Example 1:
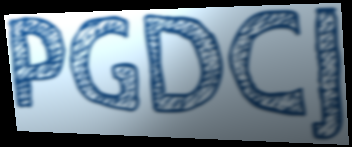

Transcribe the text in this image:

PGDCJ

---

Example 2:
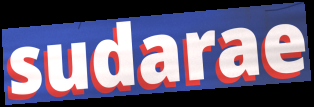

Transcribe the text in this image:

sudarae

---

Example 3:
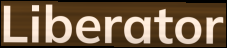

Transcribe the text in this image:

Liberator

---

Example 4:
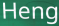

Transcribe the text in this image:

Heng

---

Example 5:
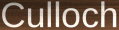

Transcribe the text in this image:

Culloch